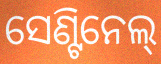
ସେଣ୍ଟିନେଲ୍